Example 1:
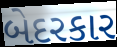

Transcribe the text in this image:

બેદરકાર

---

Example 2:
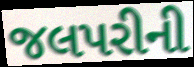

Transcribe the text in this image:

જલપરીની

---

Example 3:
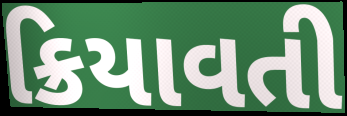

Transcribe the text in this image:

ક્રિયાવતી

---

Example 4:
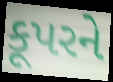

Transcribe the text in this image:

કૂપરને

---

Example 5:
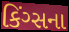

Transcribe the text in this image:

કિંગ્સના